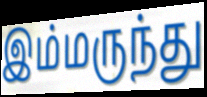
இம்மருந்து